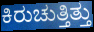
ಕಿರುಚುತ್ತಿತ್ತು